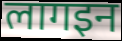
लागइन